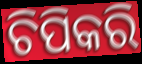
ଚିପିକରି